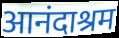
आनंदाश्रम